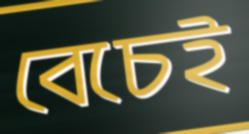
বেচেই